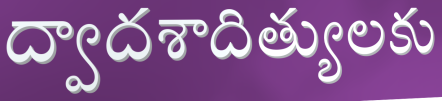
ద్వాదశాదిత్యులకు